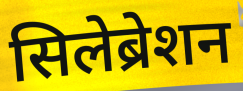
सिलेब्रेशन